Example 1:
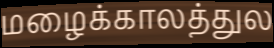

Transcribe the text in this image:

மழைக்காலத்துல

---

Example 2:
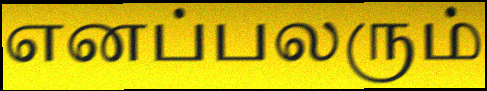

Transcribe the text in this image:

எனப்பலரும்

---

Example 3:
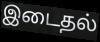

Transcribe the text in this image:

இடைதல்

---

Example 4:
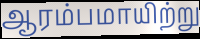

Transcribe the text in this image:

ஆரம்பமாயிற்று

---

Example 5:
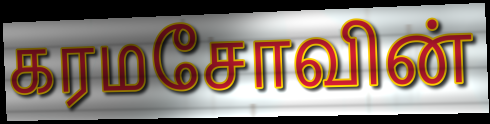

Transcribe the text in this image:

கரமசோவின்